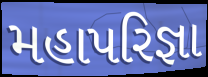
મહાપરિજ્ઞા